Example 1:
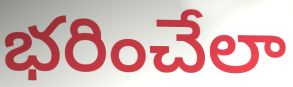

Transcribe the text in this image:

భరించేలా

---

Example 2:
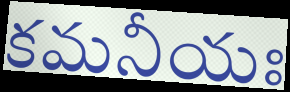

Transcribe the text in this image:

కమనీయః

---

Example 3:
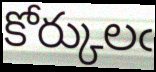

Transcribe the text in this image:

కోర్కులఁ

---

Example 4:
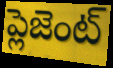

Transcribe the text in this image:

ప్లెజెంట్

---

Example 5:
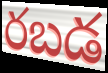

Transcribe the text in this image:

రబడ